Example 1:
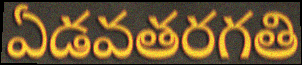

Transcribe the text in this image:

ఏడవతరగతి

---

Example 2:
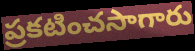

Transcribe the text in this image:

ప్రకటించసాగారు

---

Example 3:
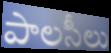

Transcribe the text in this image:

పాలసీలు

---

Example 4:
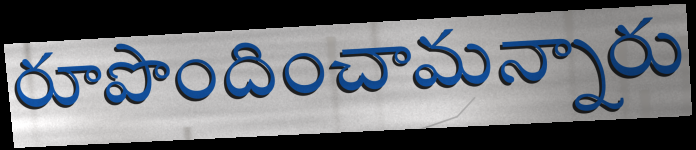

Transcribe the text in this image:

రూపొందించామన్నారు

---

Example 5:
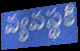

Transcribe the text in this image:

వ్యవస్థకి